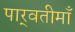
पार्वतीमाँ